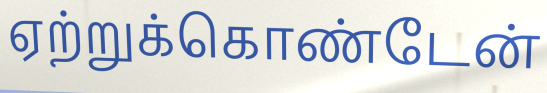
ஏற்றுக்கொண்டேன்